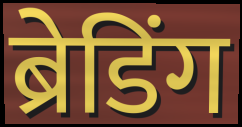
ब्रेडिंग